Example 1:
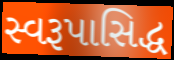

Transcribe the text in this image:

સ્વરૂપાસિદ્ધ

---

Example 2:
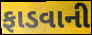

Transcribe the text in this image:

ફાડવાની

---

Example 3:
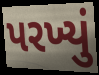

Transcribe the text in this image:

પરખ્યું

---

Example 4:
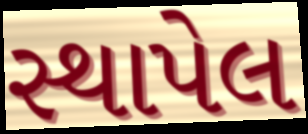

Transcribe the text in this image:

સ્થાપેલ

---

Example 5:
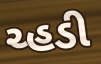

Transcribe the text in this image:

ચ્હડી